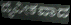
ದೈವೀಕವಾದ